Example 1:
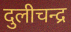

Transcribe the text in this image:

दुलीचन्द्र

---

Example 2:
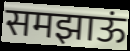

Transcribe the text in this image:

समझाऊं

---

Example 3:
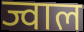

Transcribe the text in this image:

ज्वाल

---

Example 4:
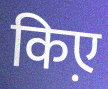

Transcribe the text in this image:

किए़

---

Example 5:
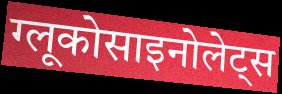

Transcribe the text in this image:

ग्लूकोसाइनोलेट्स